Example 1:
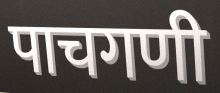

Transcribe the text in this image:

पाचगणी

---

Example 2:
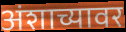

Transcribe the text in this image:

अंशाच्यावर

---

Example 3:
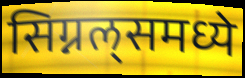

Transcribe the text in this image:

सिग्नल्समध्ये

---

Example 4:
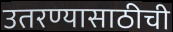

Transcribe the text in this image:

उतरण्यासाठीची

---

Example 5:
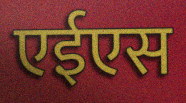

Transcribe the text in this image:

एईएस